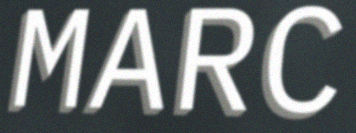
MARC